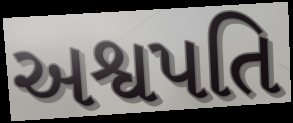
અશ્વપતિ